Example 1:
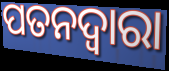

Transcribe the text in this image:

ପତନଦ୍ୱାରା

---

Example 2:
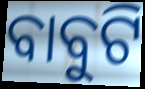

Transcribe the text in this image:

ବାବୁଟି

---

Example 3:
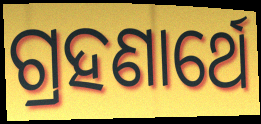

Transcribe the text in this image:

ଗ୍ରହଣାର୍ଥେ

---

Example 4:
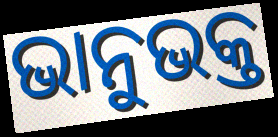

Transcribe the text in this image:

ଭାନୁଭକ୍ତ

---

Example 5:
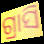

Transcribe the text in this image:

ଗ୍ରାସି